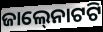
ଜାଲ୍‍ନୋଟଟି